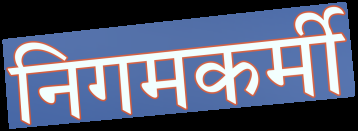
निगमकर्मी